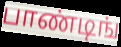
பாண்டிங்